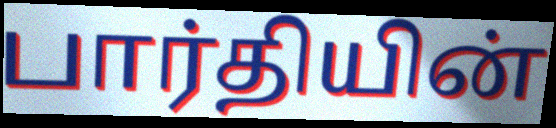
பார்தியின்